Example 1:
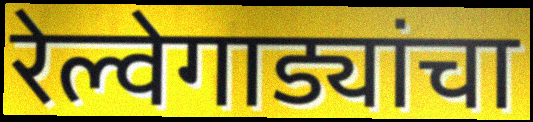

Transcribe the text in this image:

रेल्वेगाड्यांचा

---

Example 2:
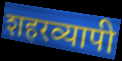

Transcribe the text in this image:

शहरव्यापी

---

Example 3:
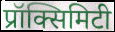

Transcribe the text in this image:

प्रॉक्सिमिटी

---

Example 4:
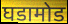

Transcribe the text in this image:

घडामोड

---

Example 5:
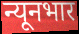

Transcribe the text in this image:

न्यूनभार